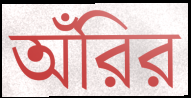
অঁরির